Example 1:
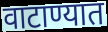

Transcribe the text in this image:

वाटाण्यात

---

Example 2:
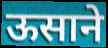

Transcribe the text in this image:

ऊसाने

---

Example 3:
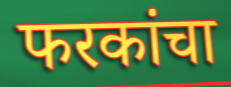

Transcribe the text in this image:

फरकांचा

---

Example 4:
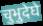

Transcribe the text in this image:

चुभुदेघे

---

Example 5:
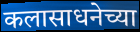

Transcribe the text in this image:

कलासाधनेच्या